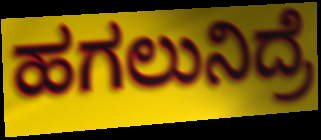
ಹಗಲುನಿದ್ರೆ